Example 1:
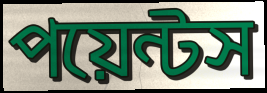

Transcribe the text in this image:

পয়েন্টস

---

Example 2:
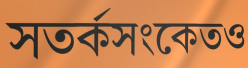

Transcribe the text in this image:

সতর্কসংকেতও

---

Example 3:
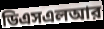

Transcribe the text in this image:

ডিএসএলআর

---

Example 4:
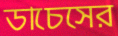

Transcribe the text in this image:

ডাচেসের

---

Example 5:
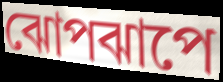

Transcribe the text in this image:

ঝোপঝাপে